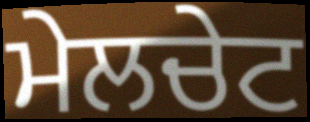
ਮੇਲਚੇਟ